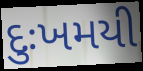
દુઃખમયી